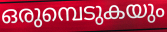
ഒരുമ്പെടുകയും